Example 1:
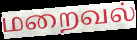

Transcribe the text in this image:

மறைவல்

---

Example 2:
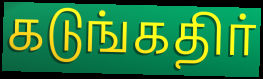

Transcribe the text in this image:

கடுங்கதிர்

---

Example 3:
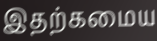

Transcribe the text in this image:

இதற்கமைய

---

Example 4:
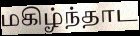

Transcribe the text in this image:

மகிழ்ந்தாட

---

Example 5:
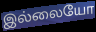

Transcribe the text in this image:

இல்லையோ